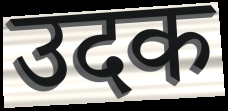
उदक